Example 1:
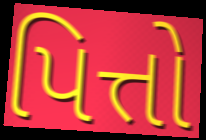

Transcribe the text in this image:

પિત્તો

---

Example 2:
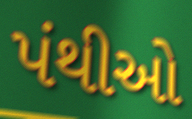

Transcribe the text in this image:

પંથીઓ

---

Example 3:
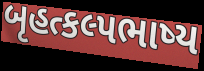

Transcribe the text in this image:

બૃહત્કલ્પભાષ્ય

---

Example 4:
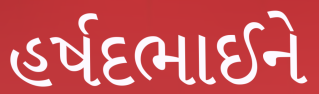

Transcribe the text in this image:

હર્ષદભાઈને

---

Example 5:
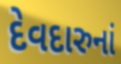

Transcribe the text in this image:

દેવદારુનાં